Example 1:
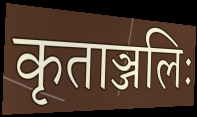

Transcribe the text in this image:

कृताञ्जलिः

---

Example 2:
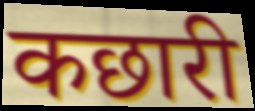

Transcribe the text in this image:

कछारी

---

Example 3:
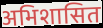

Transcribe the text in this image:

अभिशासित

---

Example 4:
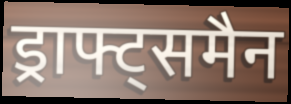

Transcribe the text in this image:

ड्राफ्ट्समैन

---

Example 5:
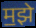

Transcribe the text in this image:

म॒झे